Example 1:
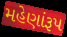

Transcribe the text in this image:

મહેણાંરૂપ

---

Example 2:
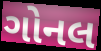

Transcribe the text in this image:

ગોનલ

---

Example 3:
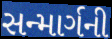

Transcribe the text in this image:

સન્માર્ગની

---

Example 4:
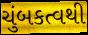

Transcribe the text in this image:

ચુંબકત્વથી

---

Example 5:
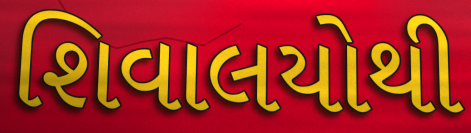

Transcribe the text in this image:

શિવાલયોથી